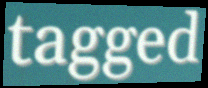
tagged